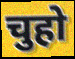
चुहो